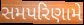
સમપરિણામે